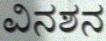
ವಿನಶನ